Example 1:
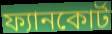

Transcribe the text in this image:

ফ্যানকোর্ট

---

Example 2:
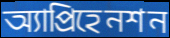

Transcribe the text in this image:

অ্যাপ্রিহেনশন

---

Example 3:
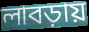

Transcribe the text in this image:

লাবড়ায়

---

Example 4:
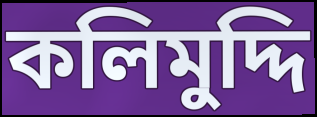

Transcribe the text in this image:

কলিমুদ্দি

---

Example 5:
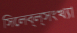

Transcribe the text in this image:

সিলেব্‌ল্‌সংখ্যা